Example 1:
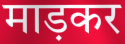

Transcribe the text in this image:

माड़कर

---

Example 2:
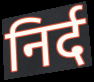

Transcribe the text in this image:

निर्द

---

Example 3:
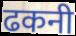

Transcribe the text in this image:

ढकनी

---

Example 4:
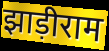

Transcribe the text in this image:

झाड़ीराम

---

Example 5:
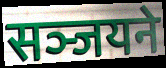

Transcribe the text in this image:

सञ्जयने